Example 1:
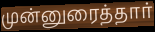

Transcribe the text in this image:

முன்னுரைத்தார்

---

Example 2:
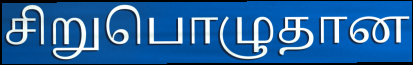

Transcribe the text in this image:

சிறுபொழுதான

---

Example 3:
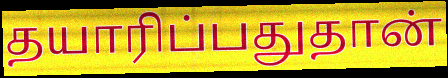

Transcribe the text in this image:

தயாரிப்பதுதான்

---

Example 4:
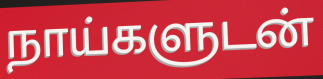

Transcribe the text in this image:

நாய்களுடன்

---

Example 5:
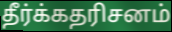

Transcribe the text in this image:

தீர்க்கதரிசனம்